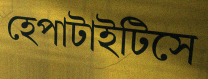
হেপাটাইটিসে